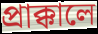
প্রাক্কালে